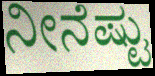
ನೀನೆಷ್ಟು